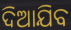
ଦିଆଯିବ